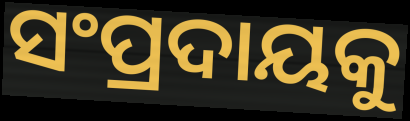
ସଂପ୍ରଦାୟକୁ